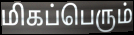
மிகப்பெரும்